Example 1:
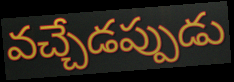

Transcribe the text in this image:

వచ్చేడప్పుడు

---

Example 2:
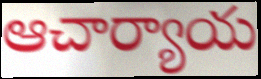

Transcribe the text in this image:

ఆచార్యాయ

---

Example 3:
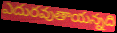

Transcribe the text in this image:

ఎదురవుతాయన్నది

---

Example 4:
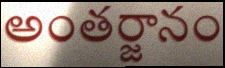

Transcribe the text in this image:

అంతర్జానం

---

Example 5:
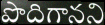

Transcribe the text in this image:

పొదిగానని